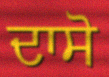
ਦਾਸੋ